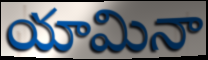
యామినా